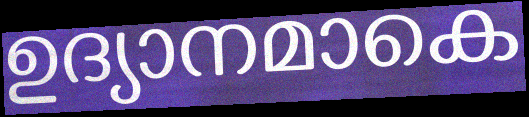
ഉദ്യാനമാകെ